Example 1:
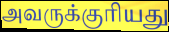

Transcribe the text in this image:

அவருக்குரியது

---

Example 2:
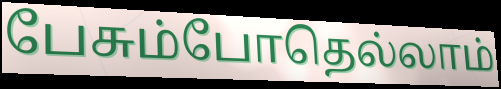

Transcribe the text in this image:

பேசும்போதெல்லாம்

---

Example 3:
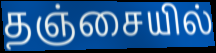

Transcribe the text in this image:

தஞ்சையில்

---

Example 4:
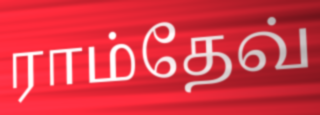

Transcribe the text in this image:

ராம்தேவ்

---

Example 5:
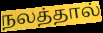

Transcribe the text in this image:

நலத்தால்